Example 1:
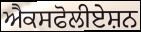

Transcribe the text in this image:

ਐਕਸਫੋਲੀਏਸ਼ਨ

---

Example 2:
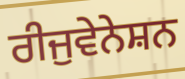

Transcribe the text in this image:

ਰੀਜੁਵੇਨੇਸ਼ਨ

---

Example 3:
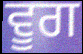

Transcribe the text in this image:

ਵੂਗ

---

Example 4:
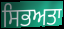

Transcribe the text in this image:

ਸਿਭਅਤਾ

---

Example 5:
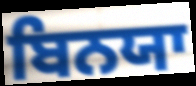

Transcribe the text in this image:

ਬਿਨਯਾ